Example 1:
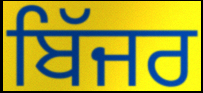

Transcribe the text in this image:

ਬਿੱਜਰ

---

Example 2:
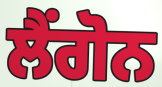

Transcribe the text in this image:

ਲੈਂਗੋਨ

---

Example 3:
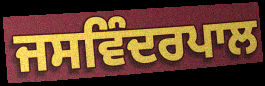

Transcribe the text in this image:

ਜਸਵਿੰਦਰਪਾਲ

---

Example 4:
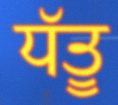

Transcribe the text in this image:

ਧੱਤੂ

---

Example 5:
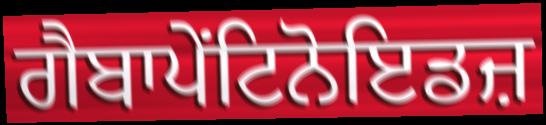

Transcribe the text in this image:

ਗੈਬਾਪੇਂਟਿਨੋਇਡਜ਼